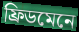
ফ্ৰিডমেনে